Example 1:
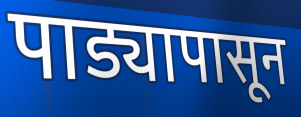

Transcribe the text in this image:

पाड्यापासून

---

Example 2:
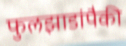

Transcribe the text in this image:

फुलझाडांपैकी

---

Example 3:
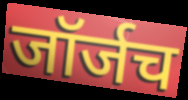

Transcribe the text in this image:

जॉर्जच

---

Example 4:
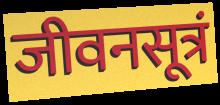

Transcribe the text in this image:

जीवनसूत्रं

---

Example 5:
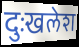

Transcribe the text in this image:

दुःखलेश